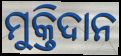
ମୁକ୍ତିଦାନ